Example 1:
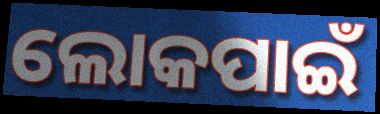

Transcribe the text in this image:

ଲୋକପାଇଁ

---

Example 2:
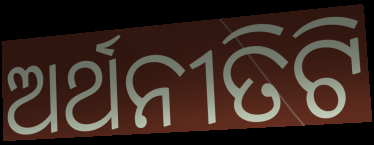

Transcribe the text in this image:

ଅର୍ଥନୀତିଟି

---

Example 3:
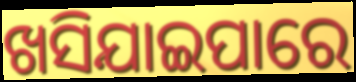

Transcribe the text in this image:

ଖସିଯାଇପାରେ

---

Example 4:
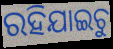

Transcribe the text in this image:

ରହିଯାଇଚୁ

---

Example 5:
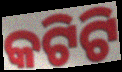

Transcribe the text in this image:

କଟିଟି